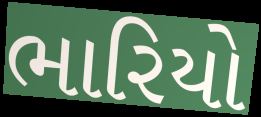
ભારિયો